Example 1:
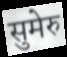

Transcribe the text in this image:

सुमेरु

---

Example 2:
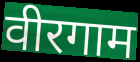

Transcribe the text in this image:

वीरगाम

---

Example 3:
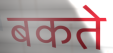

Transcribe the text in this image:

बकते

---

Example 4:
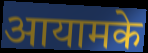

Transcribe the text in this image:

आयामके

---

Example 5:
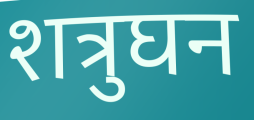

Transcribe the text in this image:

शत्रुघन